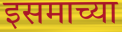
इसमाच्या